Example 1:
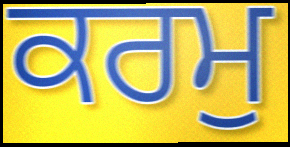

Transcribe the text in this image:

ਕਰਮੁ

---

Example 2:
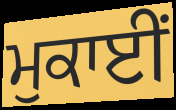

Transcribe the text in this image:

ਮੁਕਾਈਂ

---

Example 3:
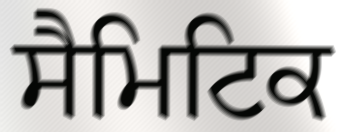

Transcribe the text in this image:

ਸੈਮਿਟਿਕ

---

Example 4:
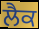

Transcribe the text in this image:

ਲੈਕ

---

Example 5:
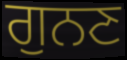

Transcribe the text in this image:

ਗੁਨਣ